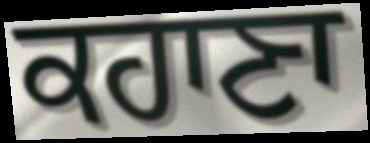
ਕਹਾਣਾ